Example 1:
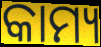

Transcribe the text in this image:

କାମ୍ୟ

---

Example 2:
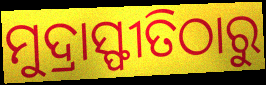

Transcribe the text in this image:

ମୁଦ୍ରାସ୍ଫୀତିଠାରୁ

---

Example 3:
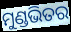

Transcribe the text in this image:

ମୁଣ୍ଡଭିତର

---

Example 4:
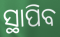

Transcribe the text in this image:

ସ୍ଥାପିବ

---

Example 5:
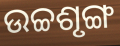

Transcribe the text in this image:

ଉଚ୍ଚଶୃଙ୍ଗ